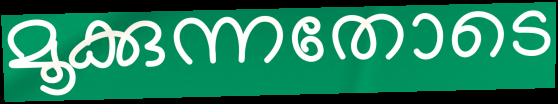
മൂക്കുന്നതോടെ